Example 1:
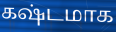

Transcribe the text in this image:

கஷ்டமாக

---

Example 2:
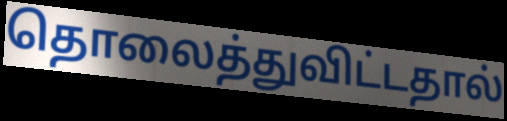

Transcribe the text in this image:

தொலைத்துவிட்டதால்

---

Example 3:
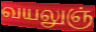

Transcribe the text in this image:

வயலுஞ்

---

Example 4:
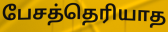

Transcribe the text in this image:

பேசத்தெரியாத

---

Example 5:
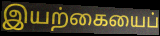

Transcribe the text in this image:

இயற்கையைப்